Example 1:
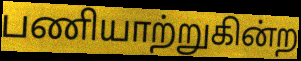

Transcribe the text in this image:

பணியாற்றுகின்ற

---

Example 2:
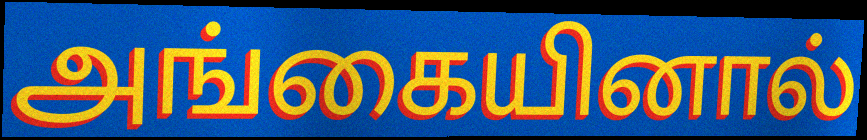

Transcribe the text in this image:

அங்கையினால்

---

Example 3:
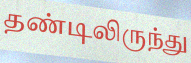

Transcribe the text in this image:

தண்டிலிருந்து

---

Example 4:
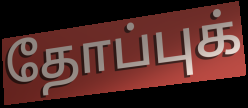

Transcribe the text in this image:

தோப்புக்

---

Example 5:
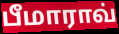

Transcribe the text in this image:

பீமாராவ்